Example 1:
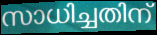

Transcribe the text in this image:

സാധിച്ചതിന്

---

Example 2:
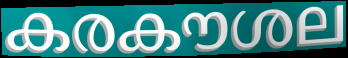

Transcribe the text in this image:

കരകൗശല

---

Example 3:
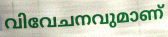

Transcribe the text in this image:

വിവേചനവുമാണ്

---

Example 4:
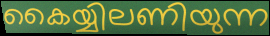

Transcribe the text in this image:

കൈയ്യിലണിയുന്ന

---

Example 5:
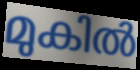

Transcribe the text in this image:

മുകിൽ